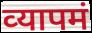
व्‍यापमं